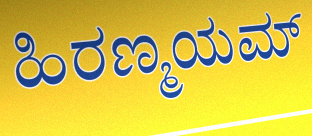
ಹಿರಣ್ಮಯಮ್